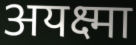
अयक्ष्मा